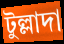
টুল্লাদা